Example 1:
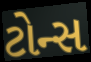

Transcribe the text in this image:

ટોન્સ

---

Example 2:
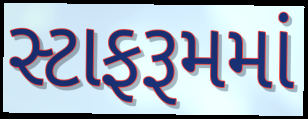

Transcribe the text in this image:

સ્ટાફરૂમમાં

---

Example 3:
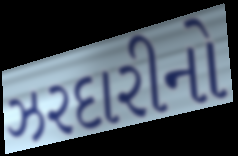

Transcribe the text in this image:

ઝરદારીનો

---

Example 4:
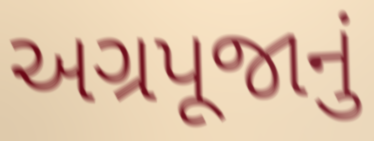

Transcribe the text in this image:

અગ્રપૂજાનું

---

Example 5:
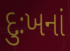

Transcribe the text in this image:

દુઃખનાં